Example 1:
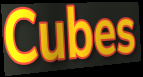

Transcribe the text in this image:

Cubes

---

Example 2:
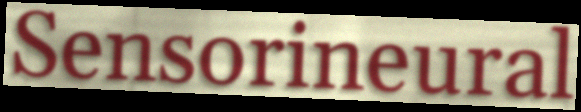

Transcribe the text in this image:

Sensorineural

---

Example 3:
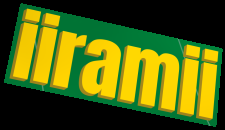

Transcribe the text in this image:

iiramii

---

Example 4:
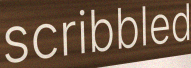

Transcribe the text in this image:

scribbled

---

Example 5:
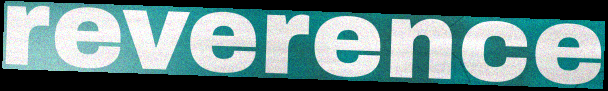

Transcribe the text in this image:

reverence